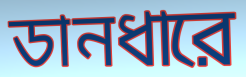
ডানধারে